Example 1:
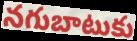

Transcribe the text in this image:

నగుబాటుకు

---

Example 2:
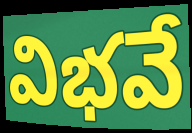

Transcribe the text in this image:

విభవే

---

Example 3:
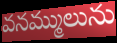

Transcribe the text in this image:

వనమ్ములును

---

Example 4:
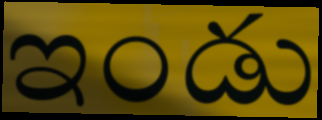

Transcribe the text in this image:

ఇండు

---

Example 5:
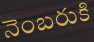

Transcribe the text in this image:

నెంబరుకి